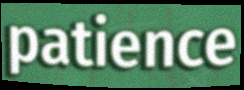
patience